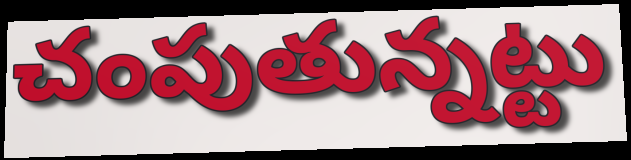
చంపుతున్నట్టు